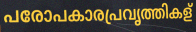
പരോപകാരപ്രവൃത്തികള്